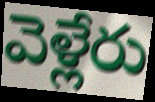
వెళ్లేరు